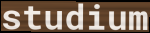
studium